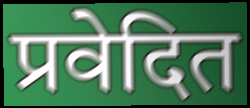
प्रवेदित